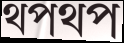
থপথপ